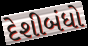
દેશીબંધો